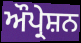
ਔਪ੍ਰੇਸ਼ਨ